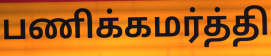
பணிக்கமர்த்தி